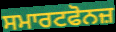
ਸਮਾਰਟਫੋਨਜ਼